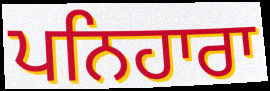
ਪਨਿਹਾਰਾ